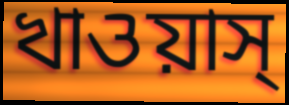
খাওয়াস্